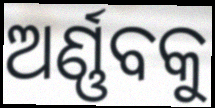
ଅର୍ଣ୍ଣବକୁ